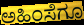
ಅಹಿಂಸೆಗೂ